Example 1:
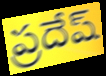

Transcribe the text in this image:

ప్రదేష్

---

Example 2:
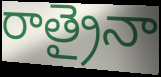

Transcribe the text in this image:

రాత్రైనా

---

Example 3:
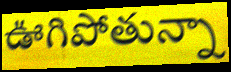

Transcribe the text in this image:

ఊగిపోతున్నా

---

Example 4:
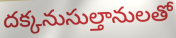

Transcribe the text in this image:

దక్కనుసుల్తానులతో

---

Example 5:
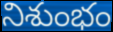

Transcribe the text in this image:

నిశుంభం